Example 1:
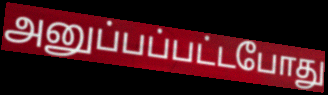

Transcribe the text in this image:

அனுப்பப்பட்டபோது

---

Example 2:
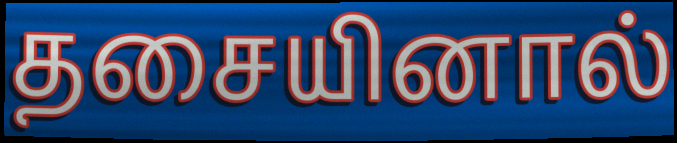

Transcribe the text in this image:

தசையினால்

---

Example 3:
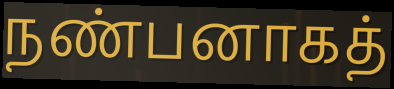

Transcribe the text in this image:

நண்பனாகத்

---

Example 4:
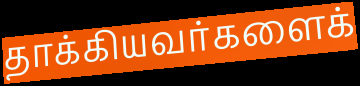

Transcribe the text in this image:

தாக்கியவர்களைக்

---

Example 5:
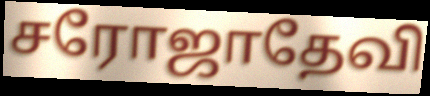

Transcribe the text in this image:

சரோஜாதேவி